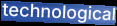
technological